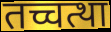
तच्चत्था